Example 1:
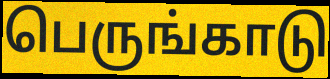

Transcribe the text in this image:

பெருங்காடு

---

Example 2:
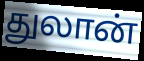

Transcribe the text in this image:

துலான்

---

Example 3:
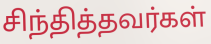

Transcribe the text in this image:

சிந்தித்தவர்கள்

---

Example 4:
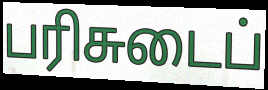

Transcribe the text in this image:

பரிசுடைப்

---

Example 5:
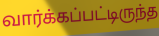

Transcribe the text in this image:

வார்க்கப்பட்டிருந்த